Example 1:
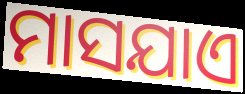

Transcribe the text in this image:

ମାସଯାଏ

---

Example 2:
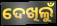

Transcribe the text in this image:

ଦେଖିଲୁଁ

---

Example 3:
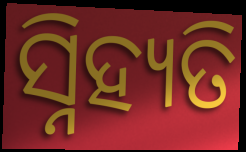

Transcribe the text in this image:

ସ୍ନିହ୍ୟତି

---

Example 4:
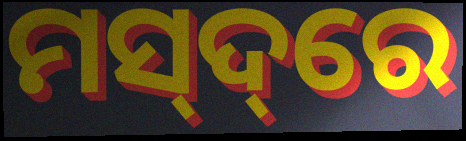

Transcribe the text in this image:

ମସ୍‌ଦ୍‌ରେ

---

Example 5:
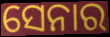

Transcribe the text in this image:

ସେନାର